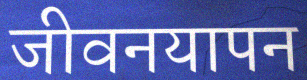
जीवनयापन